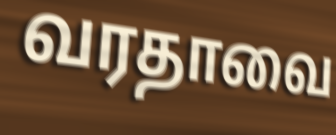
வரதாவை